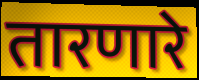
तारणारे